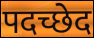
पदच्छेद